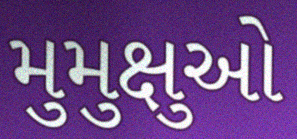
મુમુક્ષુઓ